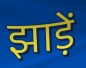
झाड़ें